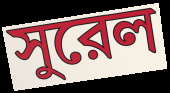
সুরেল